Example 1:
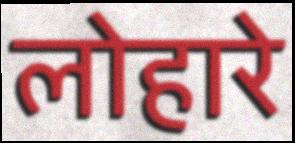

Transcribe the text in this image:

लोहारे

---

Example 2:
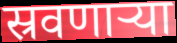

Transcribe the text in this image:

स्रवणाऱ्या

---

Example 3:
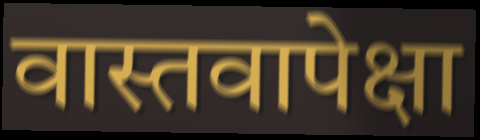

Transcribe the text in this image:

वास्तवापेक्षा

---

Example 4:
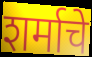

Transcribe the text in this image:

शर्माचे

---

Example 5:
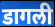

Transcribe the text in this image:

डागली